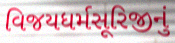
વિજયધર્મસૂરિજીનું